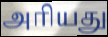
அரியது